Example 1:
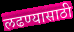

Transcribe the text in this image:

लढण्यासाठी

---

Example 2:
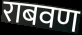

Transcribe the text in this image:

राबवण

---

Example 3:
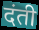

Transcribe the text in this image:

दंती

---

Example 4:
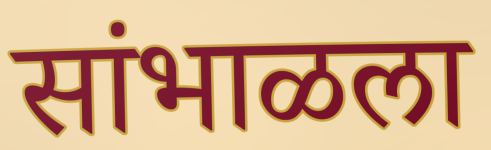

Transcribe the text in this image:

सांभाळला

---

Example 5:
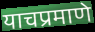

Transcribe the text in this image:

याचप्रमाणे